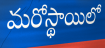
మరోస్థాయిలో